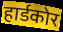
हार्डकोर